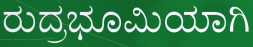
ರುದ್ರಭೂಮಿಯಾಗಿ